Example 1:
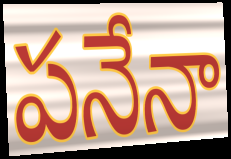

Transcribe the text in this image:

పనేనా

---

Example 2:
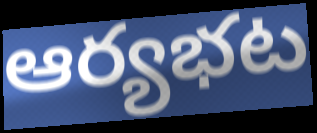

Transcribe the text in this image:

ఆర్యభట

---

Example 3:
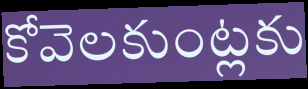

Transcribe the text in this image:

కోవెలకుంట్లకు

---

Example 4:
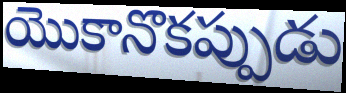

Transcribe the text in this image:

యొకానొకప్పుడు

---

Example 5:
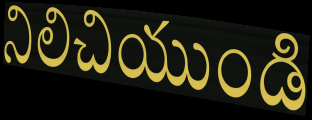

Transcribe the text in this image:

నిలిచియుండి